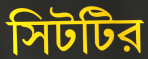
সিটটির